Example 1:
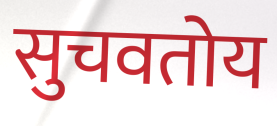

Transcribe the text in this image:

सुचवतोय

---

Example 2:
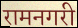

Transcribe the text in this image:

रामनगरी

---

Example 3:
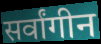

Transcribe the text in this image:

सर्वांगीन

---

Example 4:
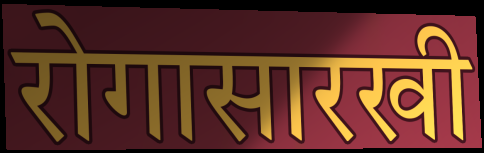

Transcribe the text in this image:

रोगासारखी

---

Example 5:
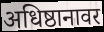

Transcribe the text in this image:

अधिष्ठानावर